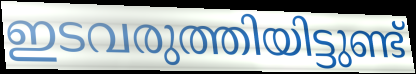
ഇടവരുത്തിയിട്ടുണ്ട്